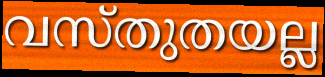
വസ്തുതയല്ല